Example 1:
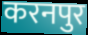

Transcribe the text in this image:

करनपुर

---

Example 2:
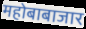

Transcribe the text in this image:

महोबाबाजार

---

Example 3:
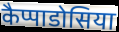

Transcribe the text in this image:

कैप्पाडोसिया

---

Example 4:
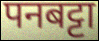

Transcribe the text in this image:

पनबट्टा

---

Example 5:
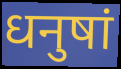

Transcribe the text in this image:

धनुषां